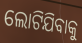
ଲୋଟିଯିବାକୁ